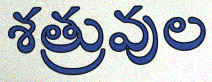
శత్రువుల